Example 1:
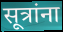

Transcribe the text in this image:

सूत्रांना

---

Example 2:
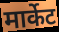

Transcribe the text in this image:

मार्केट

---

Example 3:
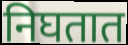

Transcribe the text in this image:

निघतात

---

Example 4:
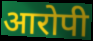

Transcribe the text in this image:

आरोपी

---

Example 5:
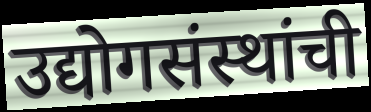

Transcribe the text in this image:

उद्योगसंस्थांची